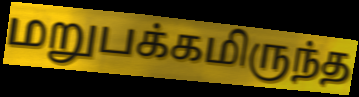
மறுபக்கமிருந்த